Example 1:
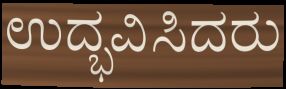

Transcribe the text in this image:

ಉದ್ಭವಿಸಿದರು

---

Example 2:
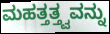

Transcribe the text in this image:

ಮಹತ್ತತ್ತ್ವವನ್ನು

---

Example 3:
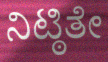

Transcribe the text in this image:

ನಿಟ್ಠಿತೇ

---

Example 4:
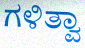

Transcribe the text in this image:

ಗಳಿತ್ವಾ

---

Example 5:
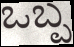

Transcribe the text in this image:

ಒಬ್ಪ